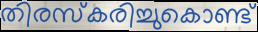
തിരസ്കരിച്ചുകൊണ്ട്